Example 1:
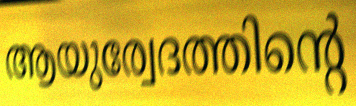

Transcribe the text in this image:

ആയുര്വേദത്തിന്റെ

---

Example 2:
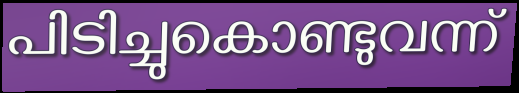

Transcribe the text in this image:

പിടിച്ചുകൊണ്ടുവന്ന്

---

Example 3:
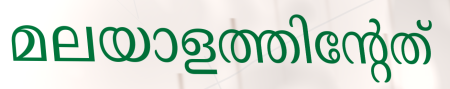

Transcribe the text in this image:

മലയാളത്തിന്റേത്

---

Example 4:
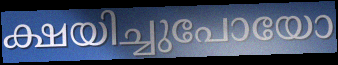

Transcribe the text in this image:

ക്ഷയിച്ചുപോയോ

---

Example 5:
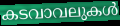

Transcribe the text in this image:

കടവാവലുകൾ